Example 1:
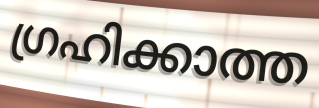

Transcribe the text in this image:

ഗ്രഹിക്കാത്ത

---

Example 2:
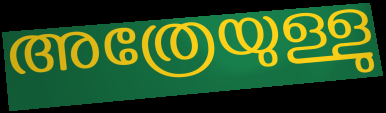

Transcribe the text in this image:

അത്രേയുള്ളു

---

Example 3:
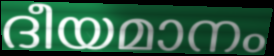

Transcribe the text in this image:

ദീയമാനം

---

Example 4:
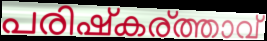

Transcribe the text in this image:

പരിഷ്കര്ത്താവ്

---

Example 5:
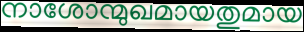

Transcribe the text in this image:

നാശോന്മുഖമായതുമായ